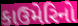
કાઉમેરિનો